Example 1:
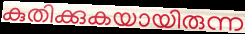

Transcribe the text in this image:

കുതിക്കുകയായിരുന്ന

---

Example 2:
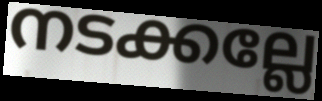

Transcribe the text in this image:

നടക്കല്ലേ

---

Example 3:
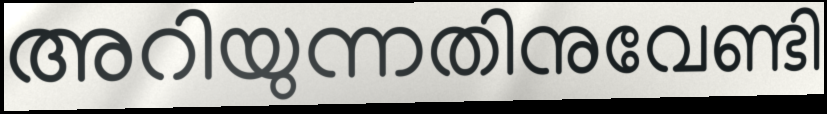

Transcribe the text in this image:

അറിയുന്നതിനുവേണ്ടി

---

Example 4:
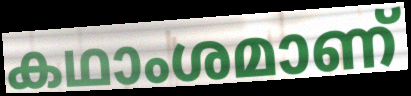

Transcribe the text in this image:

കഥാംശമാണ്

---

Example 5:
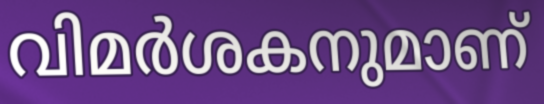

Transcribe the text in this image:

വിമർശകനുമാണ്